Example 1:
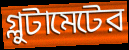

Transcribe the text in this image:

গ্লুটামেটের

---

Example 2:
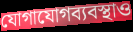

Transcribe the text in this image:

যোগাযোগব্যবস্থাও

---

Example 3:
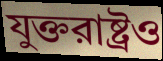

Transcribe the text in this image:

যুক্তরাষ্ট্রও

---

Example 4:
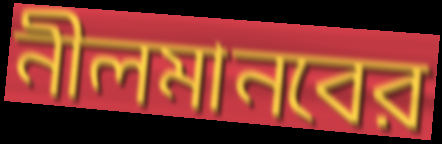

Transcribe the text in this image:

নীলমানবের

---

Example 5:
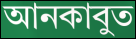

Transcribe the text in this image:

আনকাবুত